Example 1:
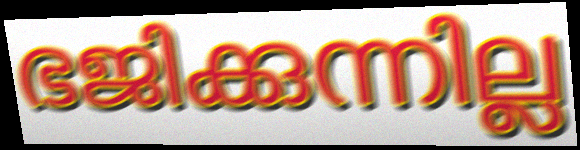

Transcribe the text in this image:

ഭജിക്കുന്നില്ല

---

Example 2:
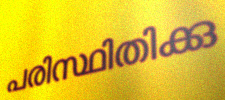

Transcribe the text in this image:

പരിസ്ഥിതിക്കു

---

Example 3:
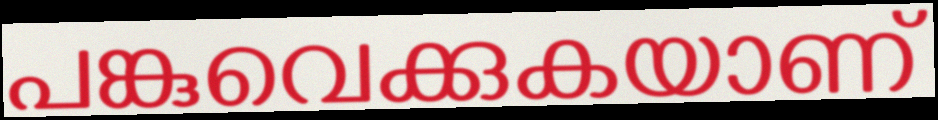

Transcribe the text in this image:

പങ്കുവെക്കുകയാണ്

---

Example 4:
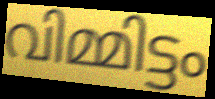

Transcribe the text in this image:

വിമ്മിട്ടം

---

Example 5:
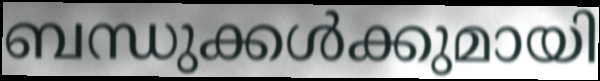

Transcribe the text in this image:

ബന്ധുക്കൾക്കുമായി